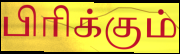
பிரிக்கும்